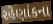
રહેણાંકના